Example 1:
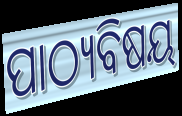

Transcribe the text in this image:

ପାଠ୍ୟବିଷୟ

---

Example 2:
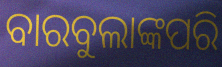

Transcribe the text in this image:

ବାରବୁଲାଙ୍କପରି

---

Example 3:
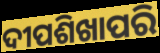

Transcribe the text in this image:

ଦୀପଶିଖାପରି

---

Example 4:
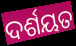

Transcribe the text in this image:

ଦର୍ଶୟତ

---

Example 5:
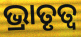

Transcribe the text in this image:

ଭ୍ରାତୃତ୍ଵ